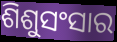
ଶିଶୁସଂସାର